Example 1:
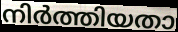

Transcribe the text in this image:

നിർത്തിയതാ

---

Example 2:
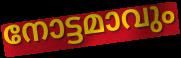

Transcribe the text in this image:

നോട്ടമാവും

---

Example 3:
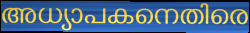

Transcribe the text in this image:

അധ്യാപകനെതിരെ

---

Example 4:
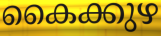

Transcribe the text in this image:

കൈക്കുഴ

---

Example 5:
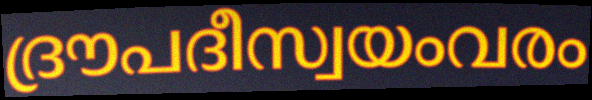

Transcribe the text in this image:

ദ്രൗപദീസ്വയംവരം